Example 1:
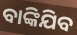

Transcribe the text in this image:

ବାଙ୍କିଯିବ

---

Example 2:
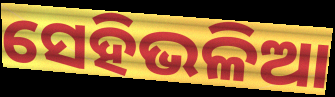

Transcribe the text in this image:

ସେହିଭଳିଆ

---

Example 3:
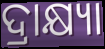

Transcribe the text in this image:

ଦ୍ରାକ୍ଷ୍ୟା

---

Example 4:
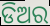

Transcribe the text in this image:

ଡିଅର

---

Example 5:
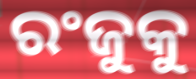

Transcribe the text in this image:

ରଂଜୁକୁ